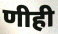
णीही